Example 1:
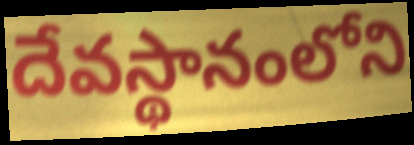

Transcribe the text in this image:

దేవస్థానంలోని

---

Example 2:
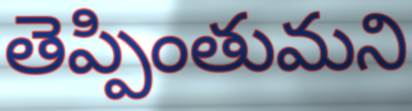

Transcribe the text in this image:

తెప్పింతుమని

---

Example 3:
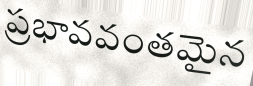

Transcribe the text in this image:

ప్రభావవంతమైన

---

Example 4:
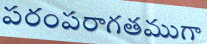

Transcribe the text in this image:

పరంపరాగతముగా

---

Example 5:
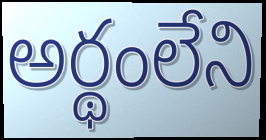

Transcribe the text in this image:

అర్థంలేని